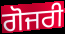
ਗੋਜਰੀ